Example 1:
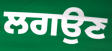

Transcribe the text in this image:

ਲਗਉਣ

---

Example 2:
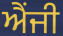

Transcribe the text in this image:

ਐਂਜੀ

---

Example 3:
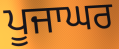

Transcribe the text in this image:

ਪੂਜਾਘਰ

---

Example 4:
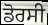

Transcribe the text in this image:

ਡੋਰਸੀ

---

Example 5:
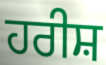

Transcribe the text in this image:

ਹਰੀਸ਼